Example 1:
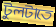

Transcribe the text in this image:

টুলটাতে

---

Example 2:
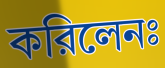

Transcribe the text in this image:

করিলেনঃ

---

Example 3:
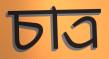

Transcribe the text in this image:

চাত্র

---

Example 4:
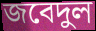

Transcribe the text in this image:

জবেদুল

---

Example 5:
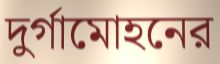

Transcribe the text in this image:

দুর্গামোহনের